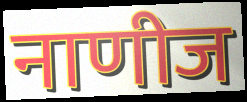
नाणीज